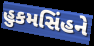
હુકમસિંહને